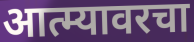
आत्म्यावरचा